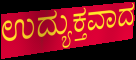
ಉದ್ಯುಕ್ತವಾದ